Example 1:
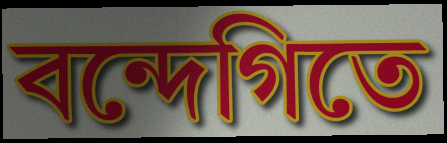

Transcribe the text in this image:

বন্দেগিতে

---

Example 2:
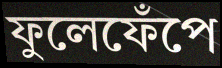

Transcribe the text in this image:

ফুলেফেঁপে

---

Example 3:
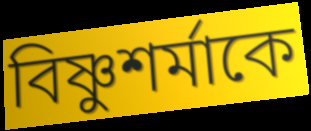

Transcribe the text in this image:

বিষ্ণুশর্মাকে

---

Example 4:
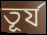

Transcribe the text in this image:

তূর্য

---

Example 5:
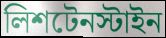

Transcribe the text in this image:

লিশটেনস্টাইন